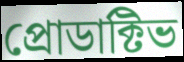
প্রোডাক্টিভ